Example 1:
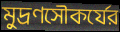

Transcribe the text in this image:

মুদ্রণসৌকর্যের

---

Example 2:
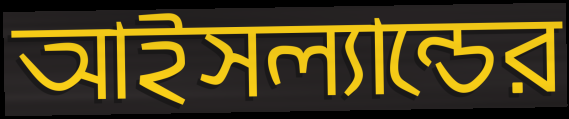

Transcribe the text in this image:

আইসল্যান্ডের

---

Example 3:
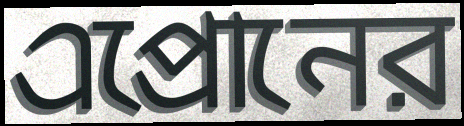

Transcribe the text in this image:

এপ্রোনের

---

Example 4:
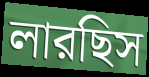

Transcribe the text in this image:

লারছিস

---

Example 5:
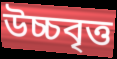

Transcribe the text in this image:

উচ্চবৃত্ত